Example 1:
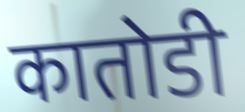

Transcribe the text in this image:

कातोडी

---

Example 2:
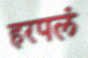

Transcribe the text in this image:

हरपलं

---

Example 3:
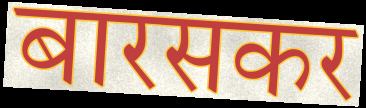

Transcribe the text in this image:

बारसकर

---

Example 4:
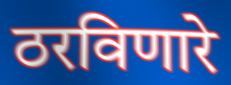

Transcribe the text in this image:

ठरविणारे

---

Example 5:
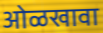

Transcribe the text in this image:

ओळखावा